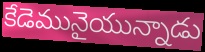
కేడెమునైయున్నాడు